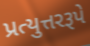
પ્રત્યુત્તરરૂપે